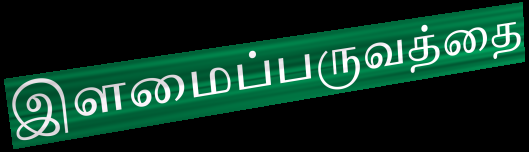
இளமைப்பருவத்தை